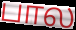
பால